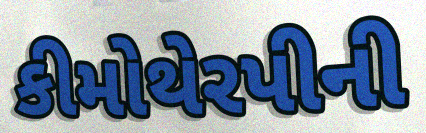
કીમોથેરપીની